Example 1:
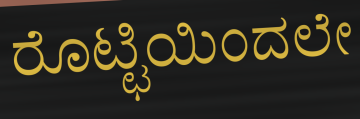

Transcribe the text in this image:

ರೊಟ್ಟಿಯಿಂದಲೇ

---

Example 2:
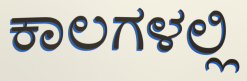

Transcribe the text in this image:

ಕಾಲಗಳಲ್ಲಿ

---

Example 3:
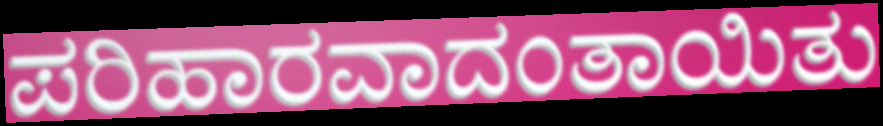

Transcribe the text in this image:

ಪರಿಹಾರವಾದಂತಾಯಿತು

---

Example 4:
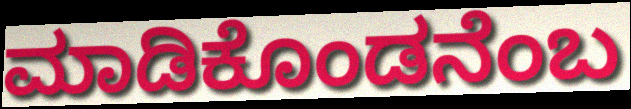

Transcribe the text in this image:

ಮಾಡಿಕೊಂಡನೆಂಬ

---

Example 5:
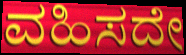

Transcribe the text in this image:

ವಹಿಸದೇ